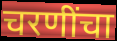
चरणींचा